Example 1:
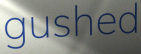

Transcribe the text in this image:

gushed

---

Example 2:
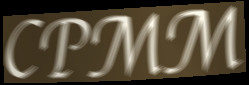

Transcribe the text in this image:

CPMM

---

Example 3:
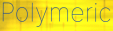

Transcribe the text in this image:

Polymeric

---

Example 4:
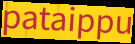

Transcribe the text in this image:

pataippu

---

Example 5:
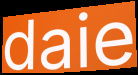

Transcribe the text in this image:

daie